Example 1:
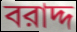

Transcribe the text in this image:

বরাদ্দ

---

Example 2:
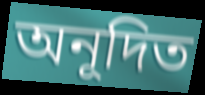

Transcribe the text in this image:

অনূদিত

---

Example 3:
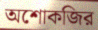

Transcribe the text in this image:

অশোকজির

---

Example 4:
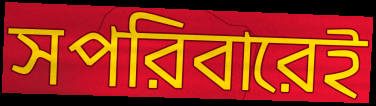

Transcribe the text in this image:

সপরিবারেই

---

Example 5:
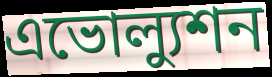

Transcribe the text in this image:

এভোল্যুশন